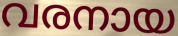
വരനായ